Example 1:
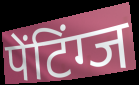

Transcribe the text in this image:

पेंटिंग्ज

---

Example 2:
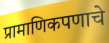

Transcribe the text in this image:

प्रामाणिकपणाचे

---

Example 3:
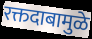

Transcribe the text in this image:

रक्तदाबामुळे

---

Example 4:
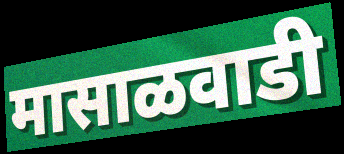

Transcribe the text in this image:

मासाळवाडी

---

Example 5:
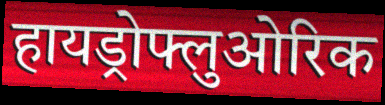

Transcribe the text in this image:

हायड्रोफ्लुओरिक